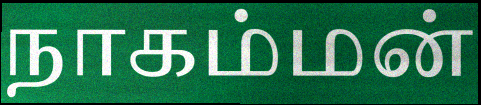
நாகம்மன்